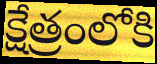
క్షేత్రంలోకి